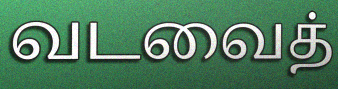
வடவைத்